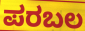
ಪರಬಲ